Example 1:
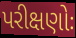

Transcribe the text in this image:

પરીક્ષણોઃ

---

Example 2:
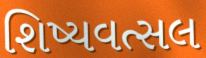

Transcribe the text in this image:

શિષ્યવત્સલ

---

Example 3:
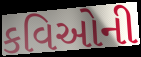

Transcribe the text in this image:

કવિઓની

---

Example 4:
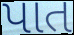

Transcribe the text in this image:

પાત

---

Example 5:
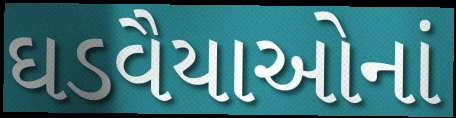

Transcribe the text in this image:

ઘડવૈયાઓનાં